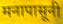
मनापासूनी